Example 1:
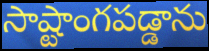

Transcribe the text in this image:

సాష్టాంగపడ్డాను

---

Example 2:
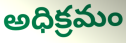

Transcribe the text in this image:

అధిక్రమం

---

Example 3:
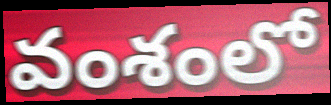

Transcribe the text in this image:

వంశంలో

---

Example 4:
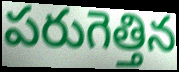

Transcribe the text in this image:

పరుగెత్తిన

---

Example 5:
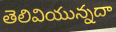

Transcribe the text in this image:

తెలివియున్నదా